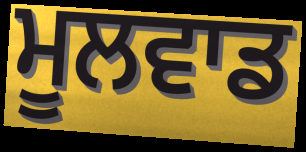
ਮੂਲਵਾਡ